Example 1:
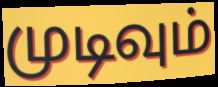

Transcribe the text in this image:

முடிவும்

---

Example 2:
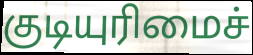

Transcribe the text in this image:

குடியுரிமைச்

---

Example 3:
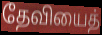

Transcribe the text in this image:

தேவியைத்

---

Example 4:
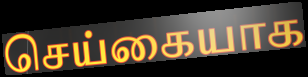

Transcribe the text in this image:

செய்கையாக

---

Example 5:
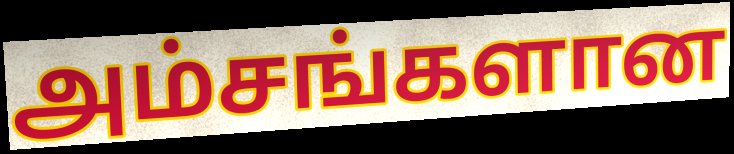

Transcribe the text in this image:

அம்சங்களான